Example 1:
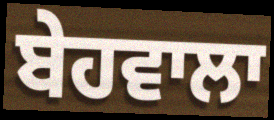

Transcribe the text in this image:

ਬੇਹਵਾਲਾ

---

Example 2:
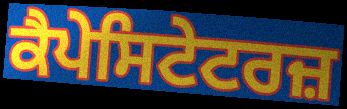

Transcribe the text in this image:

ਕੈਪੇਸਿਟੇਟਰਜ਼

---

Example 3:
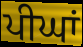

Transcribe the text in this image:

ਪੀਘਾਂ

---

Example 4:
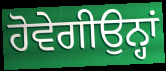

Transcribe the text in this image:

ਹੋਵੇਗੀਉਨ੍ਹਾਂ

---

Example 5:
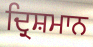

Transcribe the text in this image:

ਦ੍ਰਿਸ਼ਮਾਨ